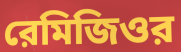
রেমিজিওর